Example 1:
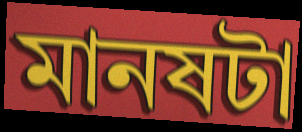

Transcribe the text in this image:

মানষটা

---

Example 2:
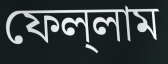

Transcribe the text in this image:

ফেল্‌লাম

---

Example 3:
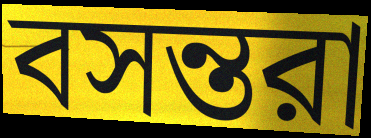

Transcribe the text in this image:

বসন্তরা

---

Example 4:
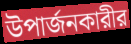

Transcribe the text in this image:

উপার্জনকারীর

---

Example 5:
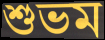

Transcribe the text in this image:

শুভম